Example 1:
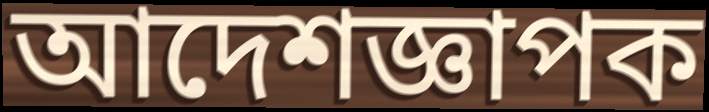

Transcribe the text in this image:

আদেশজ্ঞাপক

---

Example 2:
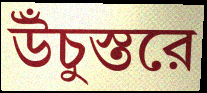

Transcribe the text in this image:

উঁচুস্তরে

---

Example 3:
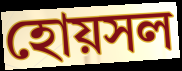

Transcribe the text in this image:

হোয়সল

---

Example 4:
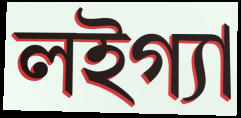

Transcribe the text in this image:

লইগ্যা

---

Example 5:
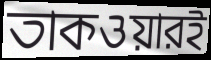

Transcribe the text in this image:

তাকওয়ারই